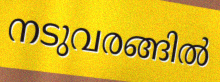
നടുവരങ്ങിൽ